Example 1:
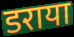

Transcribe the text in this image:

डराया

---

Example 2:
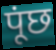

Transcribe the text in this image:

पूंछ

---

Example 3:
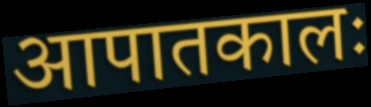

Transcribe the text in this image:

आपातकालः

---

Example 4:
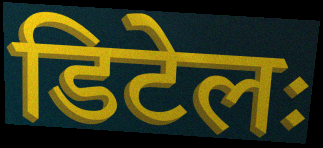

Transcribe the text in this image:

डिटेलः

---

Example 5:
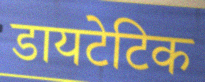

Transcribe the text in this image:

डायटेटिक